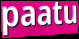
paatu